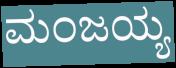
ಮಂಜಯ್ಯ